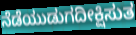
ನೆಡೆಯುಡುಗದೀಕ್ಷಿಸುತ